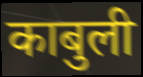
काबुली